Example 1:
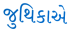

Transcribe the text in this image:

જુથિકાએ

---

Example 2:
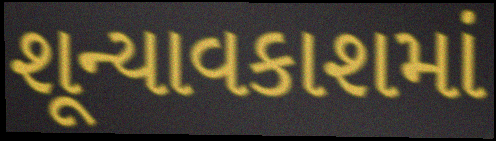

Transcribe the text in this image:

શૂન્યાવકાશમાં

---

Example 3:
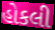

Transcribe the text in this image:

હોકલી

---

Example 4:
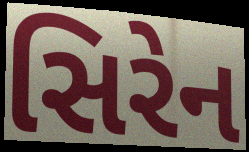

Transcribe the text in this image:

સિરેન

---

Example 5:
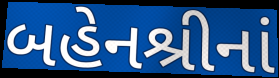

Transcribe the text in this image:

બહેનશ્રીનાં